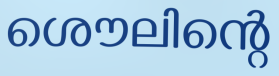
ശൌലിന്റെ